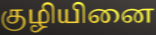
குழியினை